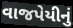
વાજપેયીનું